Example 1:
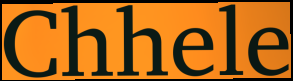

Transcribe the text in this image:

Chhele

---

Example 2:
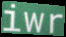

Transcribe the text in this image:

iwr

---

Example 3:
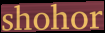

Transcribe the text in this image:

shohor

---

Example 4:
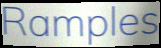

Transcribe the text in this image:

Ramples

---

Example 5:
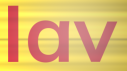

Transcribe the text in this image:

Iav